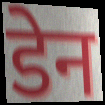
डेन